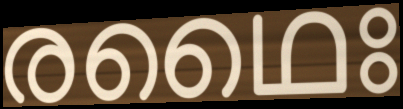
രഥൈഃ